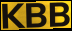
KBB